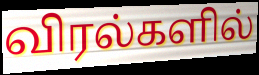
விரல்களில்